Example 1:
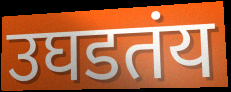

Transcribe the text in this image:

उघडतंय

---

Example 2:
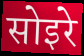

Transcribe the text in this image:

सोइरे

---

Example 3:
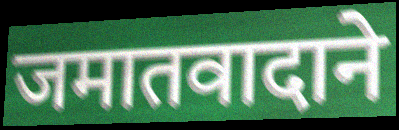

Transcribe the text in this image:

जमातवादाने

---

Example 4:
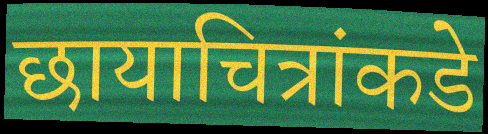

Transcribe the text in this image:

छायाचित्रांकडे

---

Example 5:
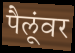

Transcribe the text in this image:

पैलूंवर